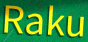
Raku